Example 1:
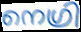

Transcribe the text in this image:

നെഗ്രി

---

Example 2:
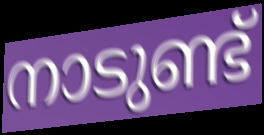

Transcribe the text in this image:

നാടുണ്ട്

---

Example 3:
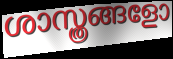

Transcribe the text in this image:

ശാസ്ത്രങ്ങളോ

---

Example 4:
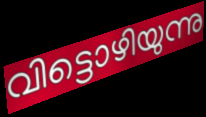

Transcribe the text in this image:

വിട്ടൊഴിയുന്നു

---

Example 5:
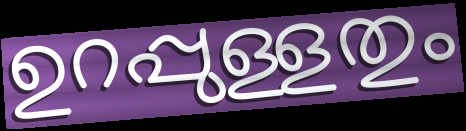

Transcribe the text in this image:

ഉറപ്പുള്ളതും